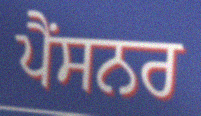
ਪੈਂਸਨਰ